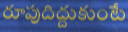
రూపుదిద్దుకుంటే